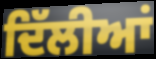
ਦਿੱਲੀਆਂ